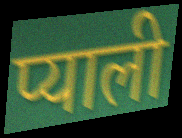
प्याली